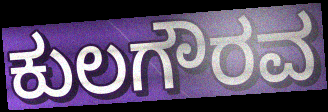
ಕುಲಗೌರವ